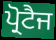
ਪ੍ਰੋਟੈਜ